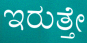
ಇರುತ್ತೇ